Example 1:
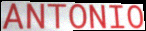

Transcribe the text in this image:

ANTONIO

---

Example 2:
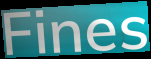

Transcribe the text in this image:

Fines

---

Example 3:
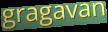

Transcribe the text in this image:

gragavan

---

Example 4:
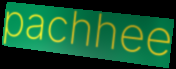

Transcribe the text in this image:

pachhee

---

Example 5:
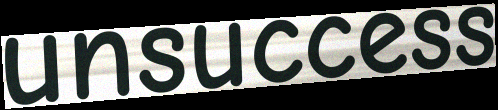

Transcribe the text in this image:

unsuccess